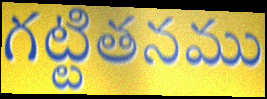
గట్టితనము